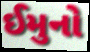
ઈમુનો